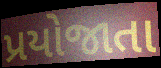
પ્રયોજાતા